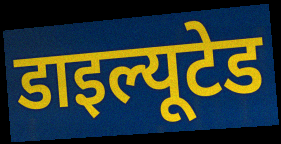
डाइल्यूटेड